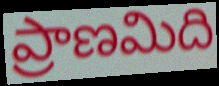
ప్రాణమిది